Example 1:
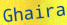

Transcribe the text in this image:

Ghaira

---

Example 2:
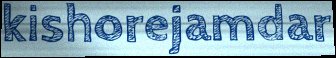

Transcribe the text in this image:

kishorejamdar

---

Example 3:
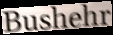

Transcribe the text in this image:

Bushehr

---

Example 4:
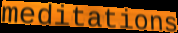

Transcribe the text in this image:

meditations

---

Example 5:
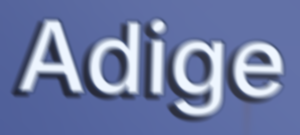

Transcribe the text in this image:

Adige